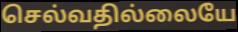
செல்வதில்லையே